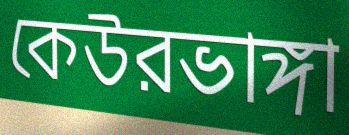
কেউরভাঙ্গা